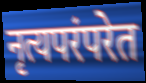
नृत्यपरंपरेत